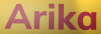
Arika